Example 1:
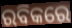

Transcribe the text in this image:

ରବିକରେ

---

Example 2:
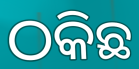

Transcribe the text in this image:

ଠକିଛ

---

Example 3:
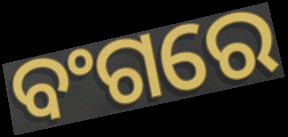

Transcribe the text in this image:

ବଂଗରେ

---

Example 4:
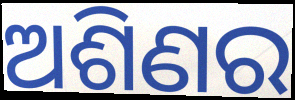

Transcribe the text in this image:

ଅଶିଣର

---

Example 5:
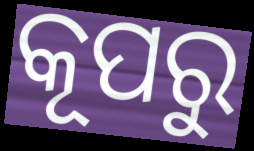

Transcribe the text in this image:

କୂପରୁ